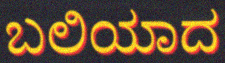
ಬಲಿಯಾದ